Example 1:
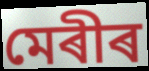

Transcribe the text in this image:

মেৰীৰ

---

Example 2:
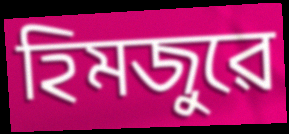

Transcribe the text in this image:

হিমজুৱে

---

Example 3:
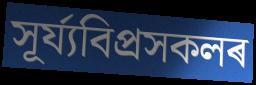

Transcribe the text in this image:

সূৰ্য্যবিপ্ৰসকলৰ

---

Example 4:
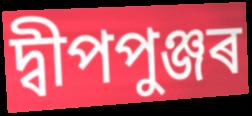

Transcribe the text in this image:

দ্বীপপুঞ্জৰ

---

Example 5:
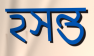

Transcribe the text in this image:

হসন্ত